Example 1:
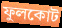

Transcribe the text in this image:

ফুলকোট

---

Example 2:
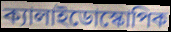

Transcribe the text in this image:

ক্যালাইডোস্কোপিক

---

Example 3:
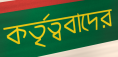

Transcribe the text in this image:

কর্তৃত্ববাদের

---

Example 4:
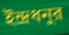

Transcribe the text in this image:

ইন্দ্রধনুর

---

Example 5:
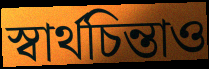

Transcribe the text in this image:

স্বার্থচিন্তাও